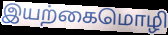
இயற்கைமொழி